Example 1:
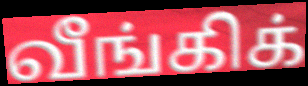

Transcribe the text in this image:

வீங்கிக்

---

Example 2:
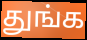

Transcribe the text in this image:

துங்க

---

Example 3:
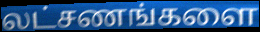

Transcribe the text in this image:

லட்சணங்களை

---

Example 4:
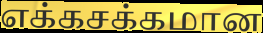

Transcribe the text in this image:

எக்கசக்கமான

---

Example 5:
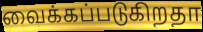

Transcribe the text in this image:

வைக்கப்படுகிறதா